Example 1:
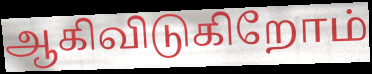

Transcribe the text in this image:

ஆகிவிடுகிறோம்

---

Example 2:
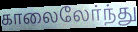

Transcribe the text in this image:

காலைலேர்ந்து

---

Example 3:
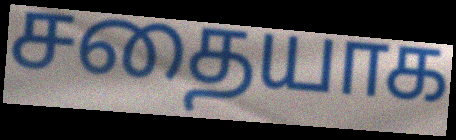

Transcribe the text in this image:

சதையாக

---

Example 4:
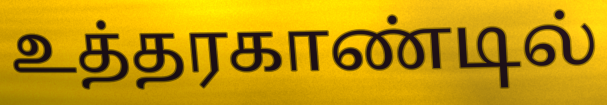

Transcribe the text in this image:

உத்தரகாண்டில்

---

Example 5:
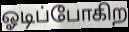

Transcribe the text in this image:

ஓடிப்போகிற